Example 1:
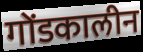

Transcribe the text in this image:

गोंडकालीन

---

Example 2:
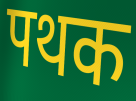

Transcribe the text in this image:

पथक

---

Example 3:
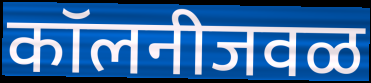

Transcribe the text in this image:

कॉलनीजवळ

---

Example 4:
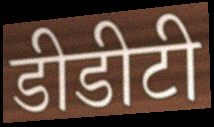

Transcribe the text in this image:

डीडीटी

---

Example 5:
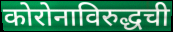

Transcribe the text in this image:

कोरोनाविरुद्धची